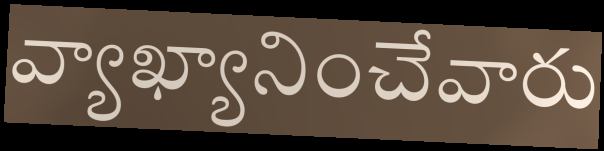
వ్యాఖ్యానించేవారు